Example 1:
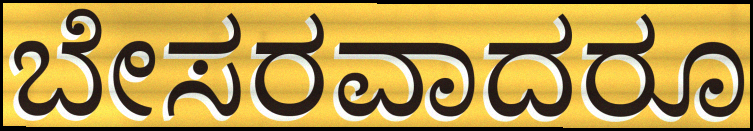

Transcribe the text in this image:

ಬೇಸರವಾದರೂ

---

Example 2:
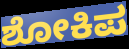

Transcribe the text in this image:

ಶೋಕಿಪ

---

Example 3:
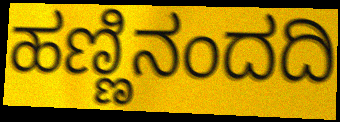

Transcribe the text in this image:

ಹಣ್ಣಿನಂದದಿ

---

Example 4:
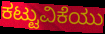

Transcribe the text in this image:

ಕಟ್ಟುವಿಕೆಯು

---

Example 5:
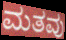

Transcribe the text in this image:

ಮತವು